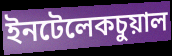
ইনটেলেকচুয়াল